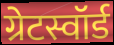
ग्रेटस्वॉर्ड